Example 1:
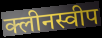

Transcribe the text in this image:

क्लीनस्वीप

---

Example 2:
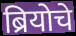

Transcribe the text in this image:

ब्रियोचे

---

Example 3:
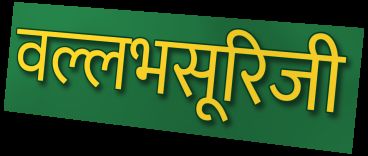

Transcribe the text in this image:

वल्लभसूरिजी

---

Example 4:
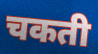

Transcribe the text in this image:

चकती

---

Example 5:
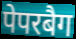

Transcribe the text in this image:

पेपरबैग